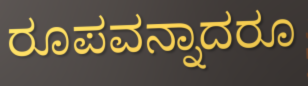
ರೂಪವನ್ನಾದರೂ